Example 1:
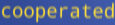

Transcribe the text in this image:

cooperated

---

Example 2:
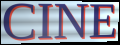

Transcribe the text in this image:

CINE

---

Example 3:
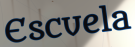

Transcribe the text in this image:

Escuela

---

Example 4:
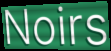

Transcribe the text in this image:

Noirs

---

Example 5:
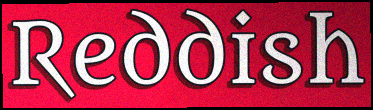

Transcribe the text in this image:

Reddish